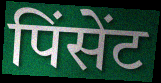
पिंसेंट